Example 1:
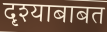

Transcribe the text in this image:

दृश्याबाबत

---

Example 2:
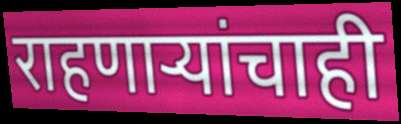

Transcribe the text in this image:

राहणाऱ्यांचाही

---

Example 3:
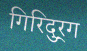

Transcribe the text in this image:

गिरिदुर्ग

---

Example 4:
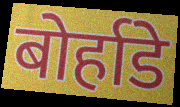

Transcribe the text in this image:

बोर्हाडे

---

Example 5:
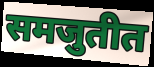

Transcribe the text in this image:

समजुतीत